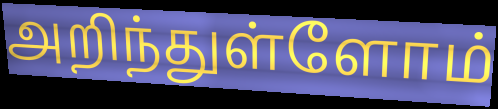
அறிந்துள்ளோம்